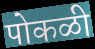
पोकळी